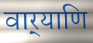
वार्याणि